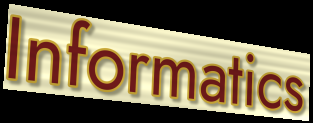
Informatics